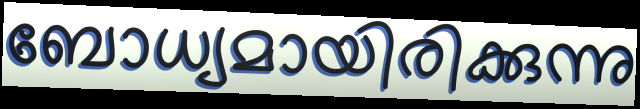
ബോധ്യമായിരിക്കുന്നു